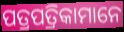
ପତ୍ରପତ୍ରିକାମାନେ